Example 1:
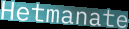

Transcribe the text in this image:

Hetmanate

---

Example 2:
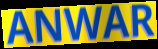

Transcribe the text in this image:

ANWAR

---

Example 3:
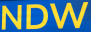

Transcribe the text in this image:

NDW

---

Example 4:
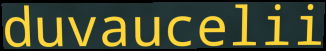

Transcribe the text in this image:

duvaucelii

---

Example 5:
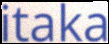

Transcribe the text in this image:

itaka